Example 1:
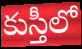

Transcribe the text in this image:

కుస్తీలో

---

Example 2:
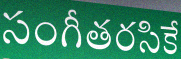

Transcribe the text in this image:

సంగీతరసికే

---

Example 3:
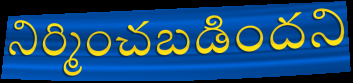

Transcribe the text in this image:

నిర్మించబడిందని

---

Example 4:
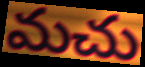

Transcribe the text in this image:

మచు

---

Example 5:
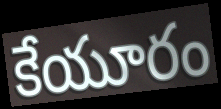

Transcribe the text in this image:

కేయూరం